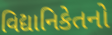
વિદ્યાનિકેતનો